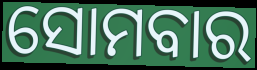
ସୋମବାର